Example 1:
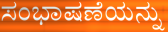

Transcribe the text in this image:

ಸಂಭಾಷಣೆಯನ್ನು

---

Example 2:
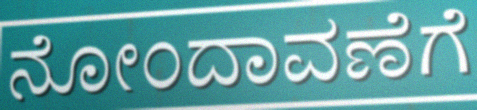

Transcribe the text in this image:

ನೋಂದಾವಣೆಗೆ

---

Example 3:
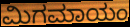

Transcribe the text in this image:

ಮಿಗಮಾಯಂ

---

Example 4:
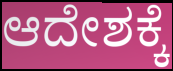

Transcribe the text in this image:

ಆದೇಶಕ್ಕೆ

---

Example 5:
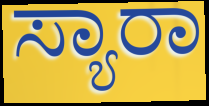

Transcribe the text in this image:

ಸ್ಯಾರಾ